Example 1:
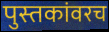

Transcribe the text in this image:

पुस्तकांवरच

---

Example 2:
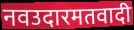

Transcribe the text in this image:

नवउदारमतवादी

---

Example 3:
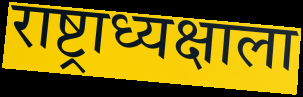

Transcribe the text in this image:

राष्ट्राध्यक्षाला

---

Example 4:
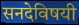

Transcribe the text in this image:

सनदेविषयी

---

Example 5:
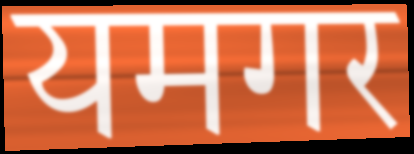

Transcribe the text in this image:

यमगर